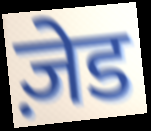
ज़ेड